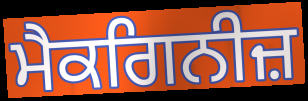
ਮੈਕਗਿਨੀਜ਼